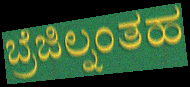
ಬ್ರೆಜಿಲ್ನಂತಹ